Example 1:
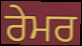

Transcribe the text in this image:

ਰੇਮਰ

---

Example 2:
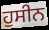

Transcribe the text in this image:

ਹੁਸੀਨ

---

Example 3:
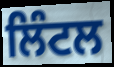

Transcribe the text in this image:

ਲਿੰਟਲ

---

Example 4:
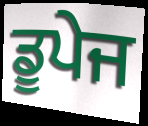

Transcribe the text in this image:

ਡੂਪੇਜ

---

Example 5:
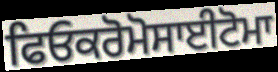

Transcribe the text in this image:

ਫਿਓਕਰੋਮੋਸਾਈਟੋਮਾ